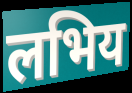
लभिय